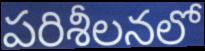
పరిశీలనలో